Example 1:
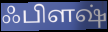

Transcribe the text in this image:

ஃபிளஷ்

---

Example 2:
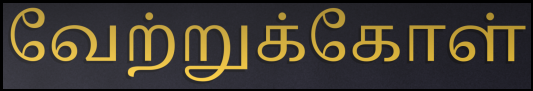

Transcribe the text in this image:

வேற்றுக்கோள்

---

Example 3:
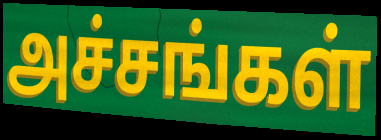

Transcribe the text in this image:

அச்சங்கள்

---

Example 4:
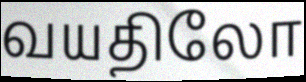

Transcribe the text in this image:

வயதிலோ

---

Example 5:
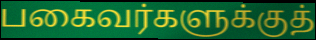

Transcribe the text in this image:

பகைவர்களுக்குத்